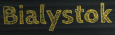
Bialystok